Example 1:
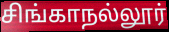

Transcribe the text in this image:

சிங்காநல்லூர்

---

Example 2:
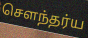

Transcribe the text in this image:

செளந்தர்ய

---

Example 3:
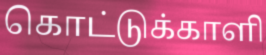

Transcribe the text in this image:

கொட்டுக்காளி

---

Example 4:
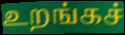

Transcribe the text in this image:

உறங்கச்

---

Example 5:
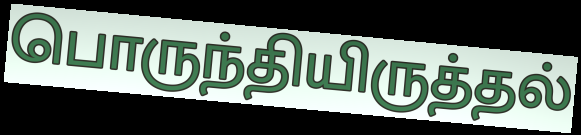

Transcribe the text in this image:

பொருந்தியிருத்தல்